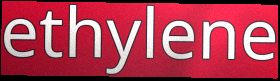
ethylene